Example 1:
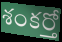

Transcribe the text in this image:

శంకర్తో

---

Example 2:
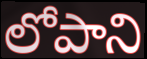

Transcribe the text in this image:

లోపాని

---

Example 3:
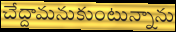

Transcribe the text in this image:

చేద్దామనుకుంటున్నాను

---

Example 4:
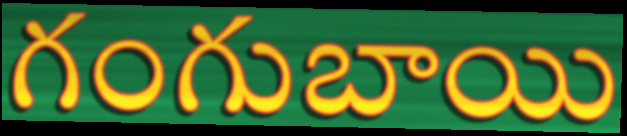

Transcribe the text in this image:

గంగుబాయి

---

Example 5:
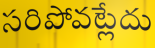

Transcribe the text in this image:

సరిపోవట్లేదు